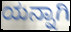
ಯನ್ನಾಗಿ